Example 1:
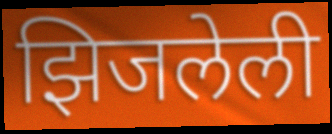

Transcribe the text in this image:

झिजलेली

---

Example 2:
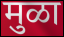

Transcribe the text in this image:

मुळा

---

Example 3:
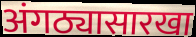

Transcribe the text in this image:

अंगठ्यासारखा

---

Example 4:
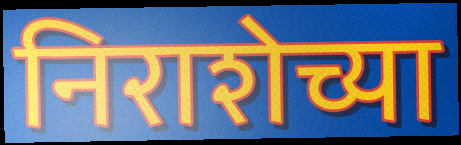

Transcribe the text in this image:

निराशेच्या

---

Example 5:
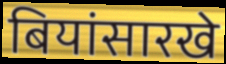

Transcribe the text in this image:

बियांसारखे